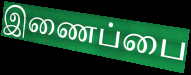
இணைப்பை